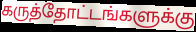
கருத்தோட்டங்களுக்கு